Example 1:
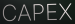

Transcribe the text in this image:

CAPEX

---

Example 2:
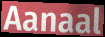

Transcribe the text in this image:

Aanaal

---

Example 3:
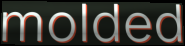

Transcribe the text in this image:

molded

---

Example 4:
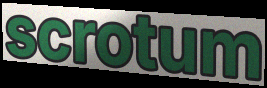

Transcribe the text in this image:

scrotum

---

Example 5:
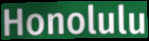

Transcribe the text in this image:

Honolulu